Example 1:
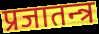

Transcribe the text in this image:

प्रजातन्त्र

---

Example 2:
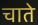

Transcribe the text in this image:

चाते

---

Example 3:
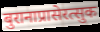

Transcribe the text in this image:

बुरानाप्रासेरत्सुक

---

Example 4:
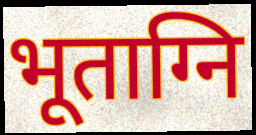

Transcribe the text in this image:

भूताग्नि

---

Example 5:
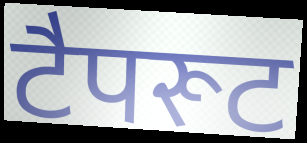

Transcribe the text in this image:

टैपरूट